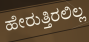
ಹೇರುತ್ತಿರಲಿಲ್ಲ